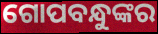
ଗୋପବନ୍ଧୁଙ୍କର